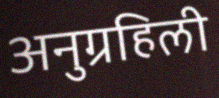
अनुग्रहिली